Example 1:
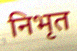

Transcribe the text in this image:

निभृत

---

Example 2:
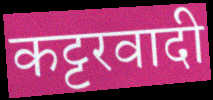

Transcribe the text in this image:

कट्टरवादी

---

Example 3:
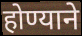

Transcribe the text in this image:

होण्याने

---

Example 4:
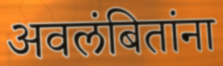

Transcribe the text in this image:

अवलंबितांना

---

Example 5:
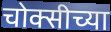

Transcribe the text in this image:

चोक्सीच्या